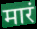
मारं